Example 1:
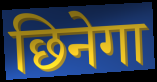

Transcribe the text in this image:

छिनेगा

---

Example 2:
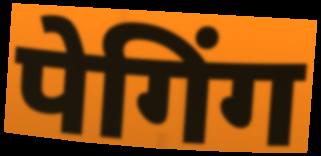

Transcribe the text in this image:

पेगिंग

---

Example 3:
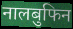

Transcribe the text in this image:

नालबुफिन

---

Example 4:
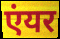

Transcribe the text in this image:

एंयर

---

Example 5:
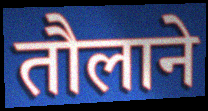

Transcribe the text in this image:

तौलाने